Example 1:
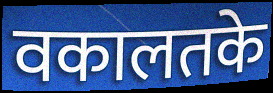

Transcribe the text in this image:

वकालतके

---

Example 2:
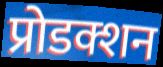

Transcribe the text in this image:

प्रोडक्‍शन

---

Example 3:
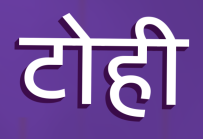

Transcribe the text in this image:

टोही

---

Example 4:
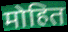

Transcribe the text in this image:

मोहित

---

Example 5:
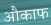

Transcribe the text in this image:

औकाफ